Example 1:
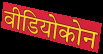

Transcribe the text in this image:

वीडियोकोन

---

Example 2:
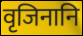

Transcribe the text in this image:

वृजिनानि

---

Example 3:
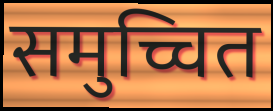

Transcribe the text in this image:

समुच्चित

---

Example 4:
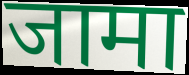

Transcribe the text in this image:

जामा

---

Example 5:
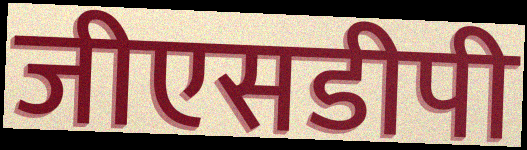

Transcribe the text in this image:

जीएसडीपी